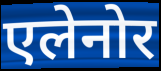
एलेनोर